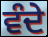
ਵੰਦੇ